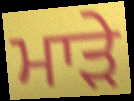
ਮਾੜੇ